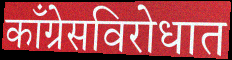
काँग्रेसविरोधात